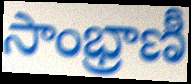
సాంభ్రాణీ